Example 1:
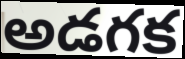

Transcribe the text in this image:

అడగక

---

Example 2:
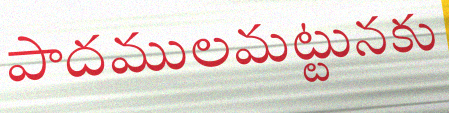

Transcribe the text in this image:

పాదములమట్టునకు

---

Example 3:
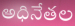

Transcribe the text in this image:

అధినేతల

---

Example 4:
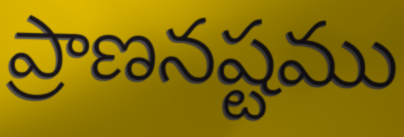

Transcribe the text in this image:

ప్రాణనష్టము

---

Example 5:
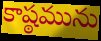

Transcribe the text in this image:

కాష్ఠమును